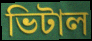
ভিটাল